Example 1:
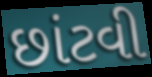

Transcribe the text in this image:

છાંટવી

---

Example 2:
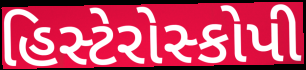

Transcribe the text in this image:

હિસ્ટેરોસ્કોપી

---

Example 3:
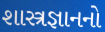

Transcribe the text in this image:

શાસ્ત્રજ્ઞાનનો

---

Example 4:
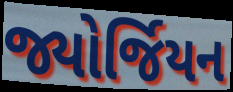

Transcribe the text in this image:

જ્યોર્જિયન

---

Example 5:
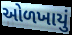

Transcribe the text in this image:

ઓળખાયું